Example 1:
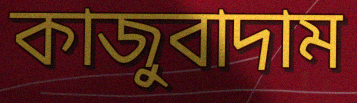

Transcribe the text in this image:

কাজুবাদাম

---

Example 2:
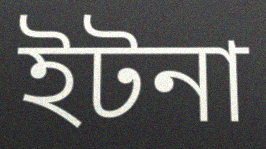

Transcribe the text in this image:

ইটনা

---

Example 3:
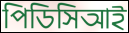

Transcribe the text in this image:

পিডিসিআই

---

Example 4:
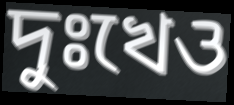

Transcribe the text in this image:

দুঃখেও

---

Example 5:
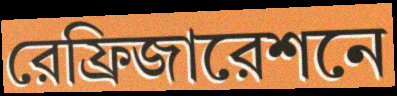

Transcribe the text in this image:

রেফ্রিজারেশনে